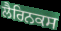
ਲੈਰਿਨਕਸ